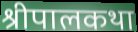
श्रीपालकथा